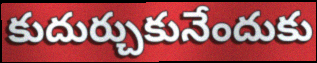
కుదుర్చుకునేందుకు